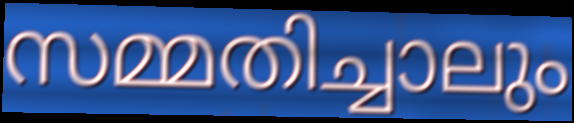
സമ്മതിച്ചാലും